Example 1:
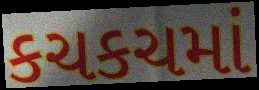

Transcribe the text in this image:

કચકચમાં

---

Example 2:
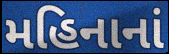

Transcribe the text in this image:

મહિનાનાં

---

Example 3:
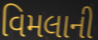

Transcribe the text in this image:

વિમલાની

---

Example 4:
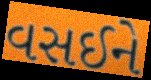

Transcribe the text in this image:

વસઈને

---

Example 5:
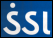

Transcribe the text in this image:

ડંડા